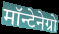
मॉन्टेनेग्रो